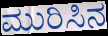
ಮುರಿಸಿನ